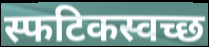
स्फटिकस्वच्छ